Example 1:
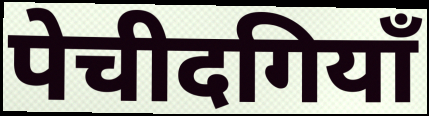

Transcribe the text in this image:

पेचीदगियाँ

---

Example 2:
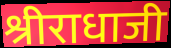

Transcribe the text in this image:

श्रीराधाजी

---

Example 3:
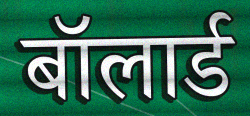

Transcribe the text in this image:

बॉलार्ड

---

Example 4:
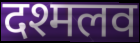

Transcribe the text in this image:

दश्मलव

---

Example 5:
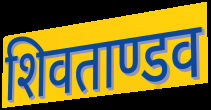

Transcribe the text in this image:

शिवताण्डव